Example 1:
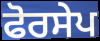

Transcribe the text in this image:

ਫੋਰਸੇਪ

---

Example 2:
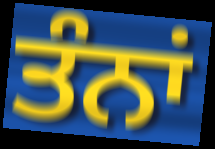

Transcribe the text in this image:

ਤੰਨਾਂ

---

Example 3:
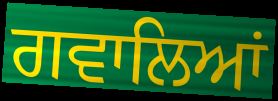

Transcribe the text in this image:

ਗਵਾਲਿਆਂ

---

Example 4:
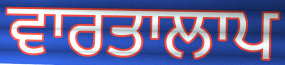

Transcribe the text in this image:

ਵਾਰਤਾਲਾਪ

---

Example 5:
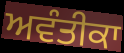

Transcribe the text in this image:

ਅਵੰਤੀਕਾ